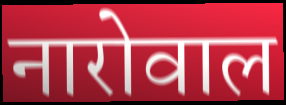
नारोवाल